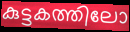
കുട്ടകത്തിലോ